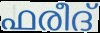
ഫരീദ്